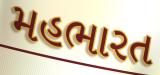
મહભારત